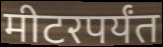
मीटरपर्यंत